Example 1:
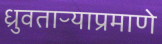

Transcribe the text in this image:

ध्रुवताऱ्याप्रमाणे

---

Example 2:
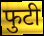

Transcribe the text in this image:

फुटी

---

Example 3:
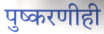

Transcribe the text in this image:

पुष्करणीही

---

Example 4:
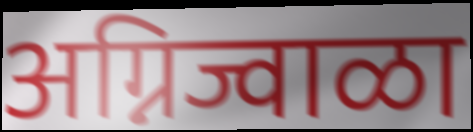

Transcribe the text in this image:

अग्निज्वाळा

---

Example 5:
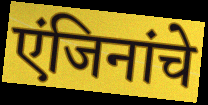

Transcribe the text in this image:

एंजिनांचे